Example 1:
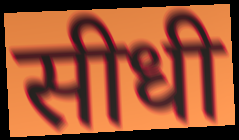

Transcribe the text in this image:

सीधी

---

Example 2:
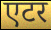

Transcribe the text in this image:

एटर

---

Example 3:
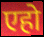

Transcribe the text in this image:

एहो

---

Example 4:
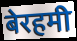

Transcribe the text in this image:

बेरहमी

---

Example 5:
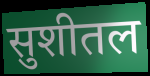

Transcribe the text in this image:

सुशीतल